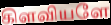
கிளவியளே